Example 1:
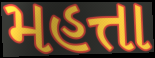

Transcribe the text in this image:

મહત્તા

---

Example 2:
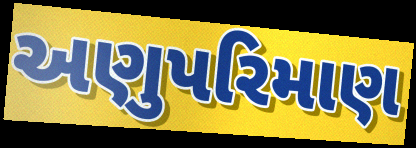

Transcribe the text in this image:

અણુપરિમાણ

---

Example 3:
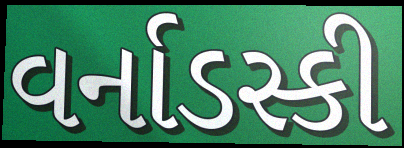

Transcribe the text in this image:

વર્નાડસ્કી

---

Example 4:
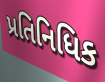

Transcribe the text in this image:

પ્રતિનિધિક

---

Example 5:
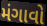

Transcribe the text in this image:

મંગાવો